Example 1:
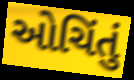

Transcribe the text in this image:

ઓચિંતું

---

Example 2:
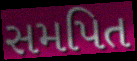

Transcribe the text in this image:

સમપિત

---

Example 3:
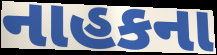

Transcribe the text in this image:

નાહકના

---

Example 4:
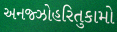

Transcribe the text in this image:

અનજ્ઝોહરિતુકામો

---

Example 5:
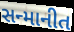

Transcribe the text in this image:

સન્માનીત